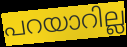
പറയാറില്ല